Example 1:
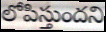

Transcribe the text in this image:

లోపిస్తుందని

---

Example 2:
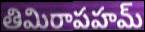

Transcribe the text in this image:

తిమిరాపహమ్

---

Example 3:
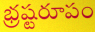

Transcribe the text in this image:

భ్రష్టరూపం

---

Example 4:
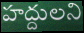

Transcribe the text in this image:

హద్దులని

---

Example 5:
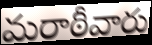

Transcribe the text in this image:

మరాఠీవారు